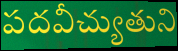
పదవీచ్యుతుని